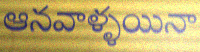
ఆనవాళ్ళయినా